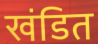
खंडित